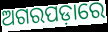
ଅଗରପଡ଼ାରେ